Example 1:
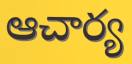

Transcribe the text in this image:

ఆచార్య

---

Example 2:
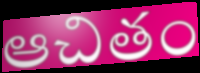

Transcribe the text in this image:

ఆచితం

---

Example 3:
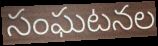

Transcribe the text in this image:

సంఘటనల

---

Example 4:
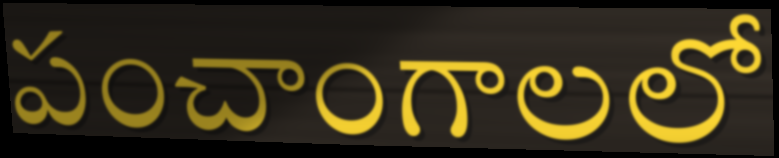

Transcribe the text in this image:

పంచాంగాలలో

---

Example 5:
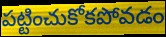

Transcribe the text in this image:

పట్టించుకోకపోవడం